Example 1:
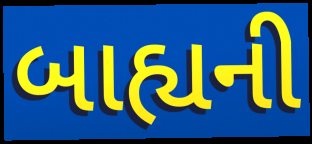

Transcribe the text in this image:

બાહ્યની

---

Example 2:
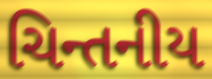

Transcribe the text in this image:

ચિન્તનીય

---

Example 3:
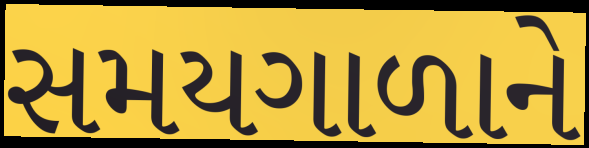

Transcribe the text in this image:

સમયગાળાને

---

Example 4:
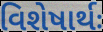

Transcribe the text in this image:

વિશેષાર્થઃ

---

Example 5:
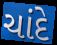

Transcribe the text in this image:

ચાંદે